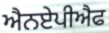
ਐਨਏਪੀਐਫ